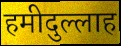
हमीदुल्लाह